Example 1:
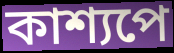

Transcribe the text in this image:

কাশ্যপে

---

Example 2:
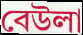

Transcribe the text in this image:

বেউলা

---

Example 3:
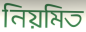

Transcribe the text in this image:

নিয়মিত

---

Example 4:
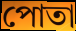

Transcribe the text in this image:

পোতা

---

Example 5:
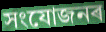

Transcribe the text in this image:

সংযোজনৰ